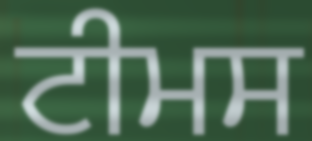
ਟੀਮਸ